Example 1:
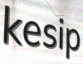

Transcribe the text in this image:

kesip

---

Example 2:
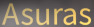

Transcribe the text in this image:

Asuras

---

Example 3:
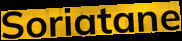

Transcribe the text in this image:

Soriatane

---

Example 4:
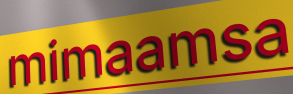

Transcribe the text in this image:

mimaamsa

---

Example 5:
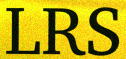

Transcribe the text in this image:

LRS